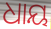
ଧାୟ